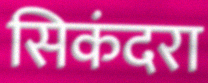
सिकंदरा